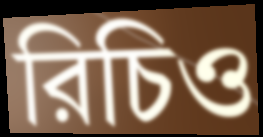
রিচিও